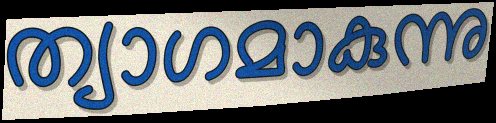
ത്യാഗമാകുന്നു